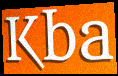
Kba